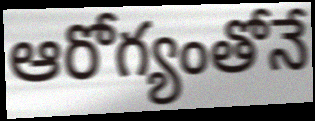
ఆరోగ్యంతోనే